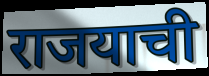
राजयाची